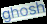
ghosh